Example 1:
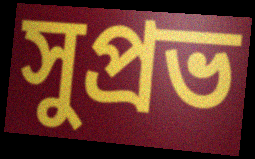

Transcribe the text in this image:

সুপ্রভ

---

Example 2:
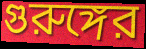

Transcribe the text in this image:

গুরুঙ্গের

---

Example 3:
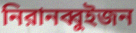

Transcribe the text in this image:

নিরানব্বুইজন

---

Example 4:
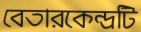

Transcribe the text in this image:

বেতারকেন্দ্রটি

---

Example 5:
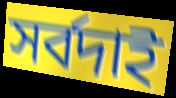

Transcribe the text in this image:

সর্বদাই